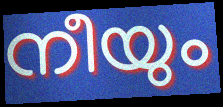
നീയും